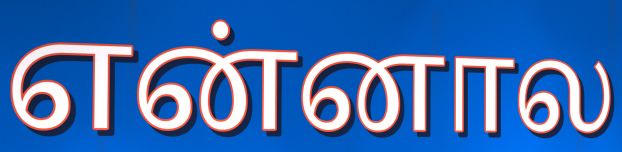
என்னால